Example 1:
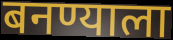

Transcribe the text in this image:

बनण्याला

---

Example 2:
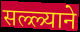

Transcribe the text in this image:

सल्ल्याने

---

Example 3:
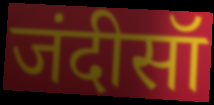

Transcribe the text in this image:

जंदीसॉ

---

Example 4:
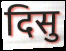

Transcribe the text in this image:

दिसु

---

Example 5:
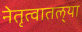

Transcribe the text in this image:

नेतृत्वातल्या